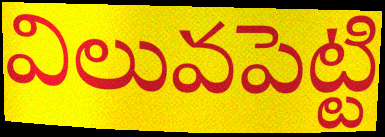
విలువపెట్టి